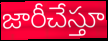
జారీచేస్తూ